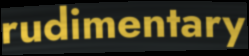
rudimentary